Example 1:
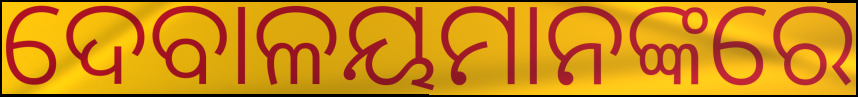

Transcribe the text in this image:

ଦେବାଳୟମାନଙ୍କରେ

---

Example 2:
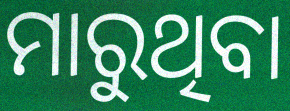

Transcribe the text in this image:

ମାରୁଥିବା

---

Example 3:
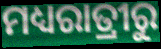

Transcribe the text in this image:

ମଧ୍ୟରାତ୍ରୀରୁ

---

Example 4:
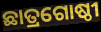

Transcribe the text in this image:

ଛାତ୍ରଗୋଷ୍ଠୀ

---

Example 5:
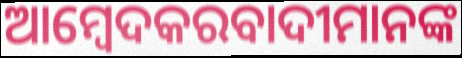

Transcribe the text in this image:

ଆମ୍ବେଦକରବାଦୀମାନଙ୍କ